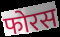
फोरस